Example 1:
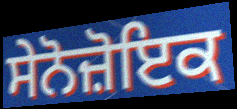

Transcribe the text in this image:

ਸੇਨੋਜ਼ੋਇਕ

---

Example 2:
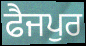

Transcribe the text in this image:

ਫੈਜਪੁਰ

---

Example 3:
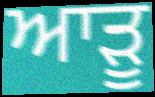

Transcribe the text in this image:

ਆੜੂ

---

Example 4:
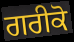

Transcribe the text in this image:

ਗਰੀਕੋ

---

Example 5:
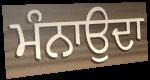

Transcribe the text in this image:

ਮੰਨਾਉਦਾ